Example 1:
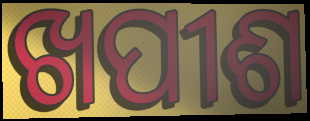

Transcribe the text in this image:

ଖପୀଶ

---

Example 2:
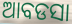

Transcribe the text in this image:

ଆବଡସା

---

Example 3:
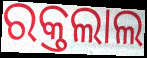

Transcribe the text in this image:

ରକ୍ତଲାଲ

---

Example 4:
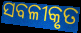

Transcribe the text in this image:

ସବଳୀକୃତ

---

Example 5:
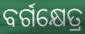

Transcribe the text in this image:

ବର୍ଗକ୍ଷେତ୍ର